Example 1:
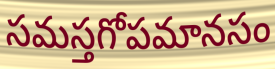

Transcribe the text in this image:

సమస్తగోపమానసం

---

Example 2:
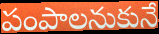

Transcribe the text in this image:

పంపాలనుకునే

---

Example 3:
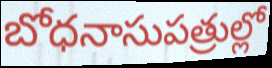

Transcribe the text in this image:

బోధనాసుపత్రుల్లో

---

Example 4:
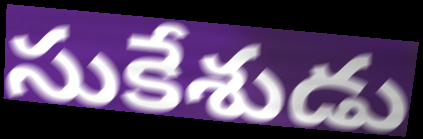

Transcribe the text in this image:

సుకేశుడు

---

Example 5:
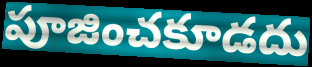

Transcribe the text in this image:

పూజించకూడదు